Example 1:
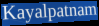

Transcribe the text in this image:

Kayalpatnam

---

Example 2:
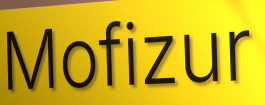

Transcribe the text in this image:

Mofizur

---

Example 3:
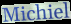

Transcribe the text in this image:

Michiel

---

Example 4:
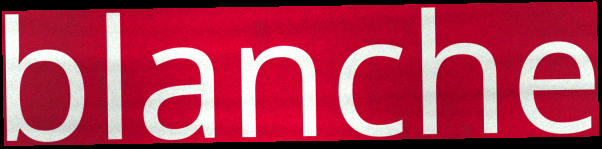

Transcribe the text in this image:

blanche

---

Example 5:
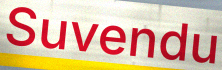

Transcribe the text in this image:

Suvendu